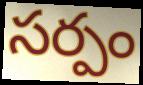
సర్పం